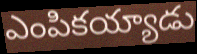
ఎంపికయ్యాడు